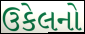
ઉકેલનો